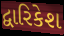
દ્વારિકેશ